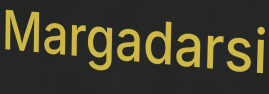
Margadarsi